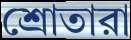
শ্রোতারা